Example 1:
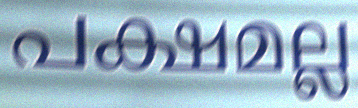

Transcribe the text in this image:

പക്ഷമല്ല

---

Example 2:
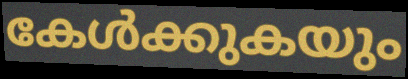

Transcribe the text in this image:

കേൾക്കുകയും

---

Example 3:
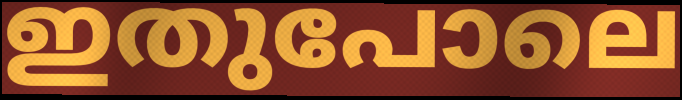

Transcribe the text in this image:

ഇതുപോലെ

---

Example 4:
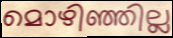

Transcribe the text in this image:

മൊഴിഞ്ഞില്ല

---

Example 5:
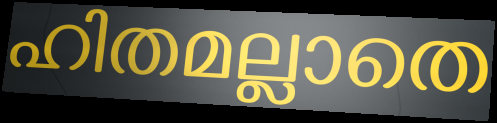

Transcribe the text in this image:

ഹിതമല്ലാതെ